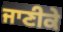
ਜਾਣੀਕੇ